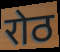
रोठ